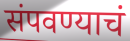
संपवण्याचं